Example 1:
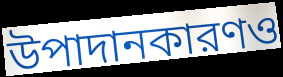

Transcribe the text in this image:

উপাদানকারণও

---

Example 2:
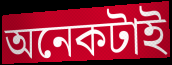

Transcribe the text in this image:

অনেকটাই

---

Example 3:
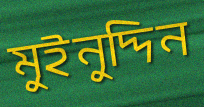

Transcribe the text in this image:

মুইনুদ্দিন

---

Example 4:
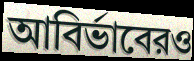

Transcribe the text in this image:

আবির্ভাবেরও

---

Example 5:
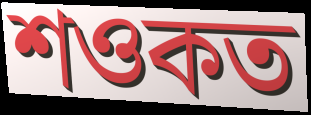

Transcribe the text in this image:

শওকত